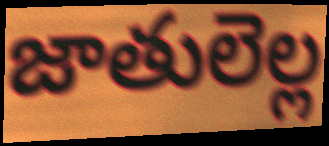
జాతులెల్ల